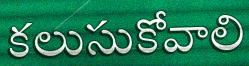
కలుసుకోవాలి